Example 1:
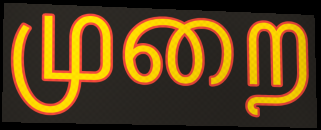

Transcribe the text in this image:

முறை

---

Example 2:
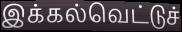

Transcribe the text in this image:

இக்கல்வெட்டுச்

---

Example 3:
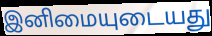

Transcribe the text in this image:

இனிமையுடையது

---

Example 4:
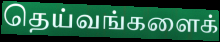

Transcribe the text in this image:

தெய்வங்களைக்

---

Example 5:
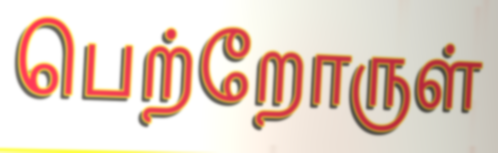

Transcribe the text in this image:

பெற்றோருள்